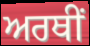
ਅਰਥੀਂ